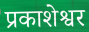
प्रकाशेश्वर